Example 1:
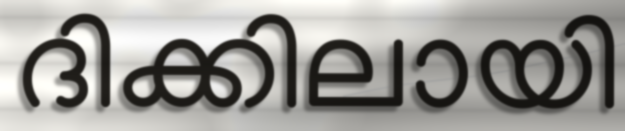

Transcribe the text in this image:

ദിക്കിലായി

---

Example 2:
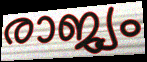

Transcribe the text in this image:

രാജ്യം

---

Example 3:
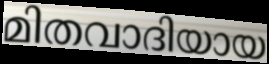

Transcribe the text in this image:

മിതവാദിയായ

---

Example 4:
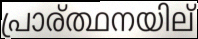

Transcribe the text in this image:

പ്രാര്ത്ഥനയില്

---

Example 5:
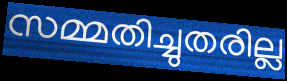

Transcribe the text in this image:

സമ്മതിച്ചുതരില്ല